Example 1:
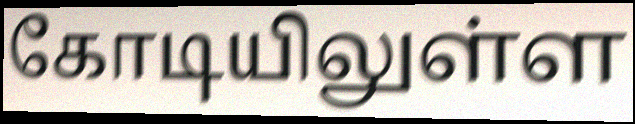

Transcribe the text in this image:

கோடியிலுள்ள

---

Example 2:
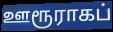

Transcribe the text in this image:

ஊரூராகப்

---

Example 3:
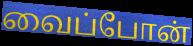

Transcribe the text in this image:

வைப்போன்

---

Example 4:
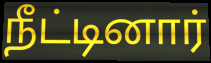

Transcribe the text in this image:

நீட்டினார்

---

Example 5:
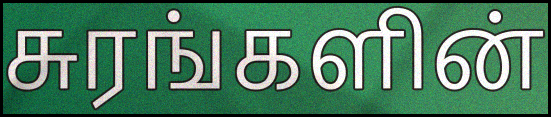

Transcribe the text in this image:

சுரங்களின்